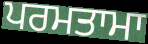
ਪਰਮਤਾਮਾ